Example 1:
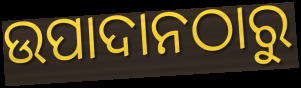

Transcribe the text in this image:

ଉପାଦାନଠାରୁ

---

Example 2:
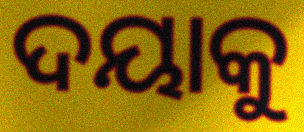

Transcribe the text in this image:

ଦୟାକୁ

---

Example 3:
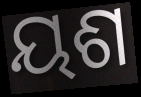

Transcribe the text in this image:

ୟଶ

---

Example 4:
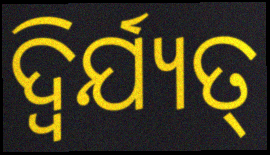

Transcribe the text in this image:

ଦ୍ୱିର୍ଯ୍ୟତ୍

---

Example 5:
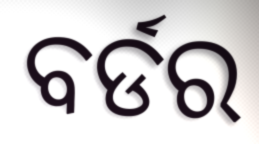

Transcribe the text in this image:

ବର୍ଡର